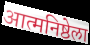
आत्मनिष्ठेला